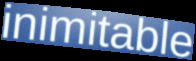
inimitable